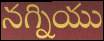
నగ్నియు